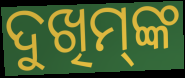
ଦୁଖିମ୍‌ଙ୍କ